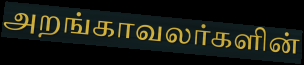
அறங்காவலர்களின்